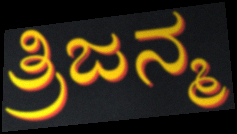
ತ್ರಿಜನ್ಮ